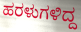
ಹರಳುಗಳಿದ್ದ